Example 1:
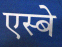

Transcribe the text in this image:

एस्बे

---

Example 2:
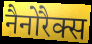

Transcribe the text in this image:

नैनोरैक्स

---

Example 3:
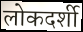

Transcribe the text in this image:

लोकदर्शी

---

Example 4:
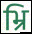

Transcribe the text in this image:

भ्रि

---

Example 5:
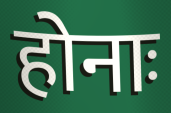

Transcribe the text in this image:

होनाः